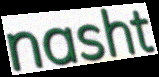
nasht